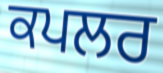
ਕਪਲਰ